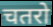
चतरो